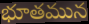
భూతమున